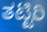
ತಟ್ಟಿರಿ